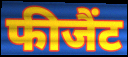
फीजैंट